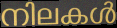
നിലകൾ